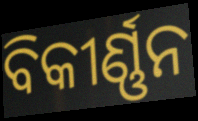
ବିକୀର୍ଣ୍ଣନ